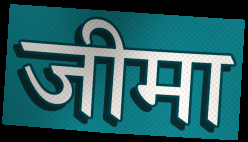
जीमा